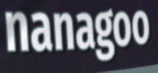
nanagoo